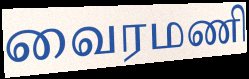
வைரமணி